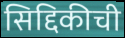
सिद्दिकीची